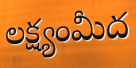
లక్ష్యంమీద